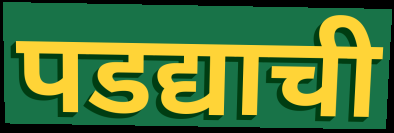
पडद्याची